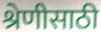
श्रेणीसाठी